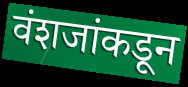
वंशजांकडून